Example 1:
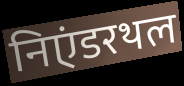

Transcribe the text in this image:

निएंडरथल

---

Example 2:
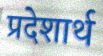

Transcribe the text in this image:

प्रदेशार्थ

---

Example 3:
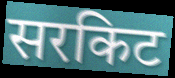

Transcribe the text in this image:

सरकिट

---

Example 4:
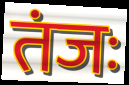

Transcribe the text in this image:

तंजः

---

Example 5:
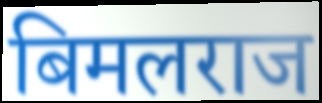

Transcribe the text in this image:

बिमलराज